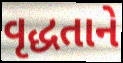
વૃદ્ધતાને